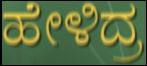
ಹೇಳಿದ್ರ